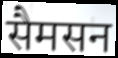
सैमसन